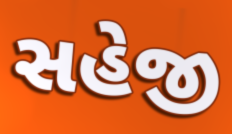
સહેજી